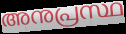
അനുപ്രസ്ഥ